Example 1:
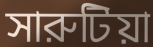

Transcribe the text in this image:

সারুটিয়া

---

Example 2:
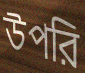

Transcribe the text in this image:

উপরি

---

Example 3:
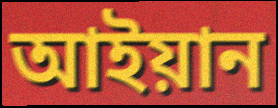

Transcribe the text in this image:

আইয়ান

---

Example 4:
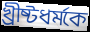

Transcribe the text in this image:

খ্রীষ্টধর্মকে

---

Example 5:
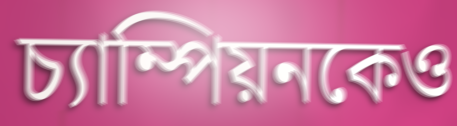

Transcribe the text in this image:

চ্যাম্পিয়নকেও